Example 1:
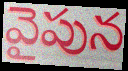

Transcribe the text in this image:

వైపున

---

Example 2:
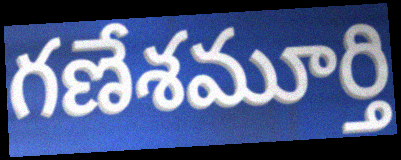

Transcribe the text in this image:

గణేశమూర్తి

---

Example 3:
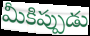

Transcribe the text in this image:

మీకిప్పుడు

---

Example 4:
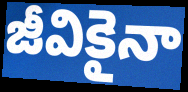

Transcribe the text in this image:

జీవికైనా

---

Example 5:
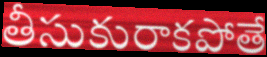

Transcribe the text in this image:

తీసుకురాకపోతే